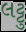
લટ્ટુ